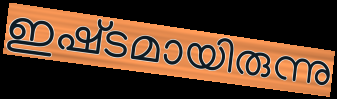
ഇഷ്‌ടമായിരുന്നു